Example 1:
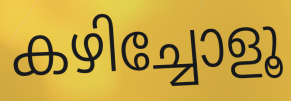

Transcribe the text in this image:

കഴിച്ചോളൂ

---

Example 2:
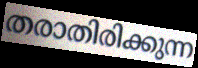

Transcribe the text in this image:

തരാതിരിക്കുന്ന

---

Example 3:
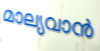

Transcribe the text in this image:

മാല്യവാൻ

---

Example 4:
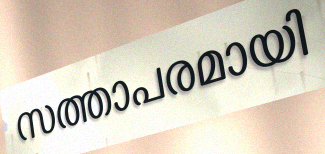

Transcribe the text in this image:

സത്താപരമായി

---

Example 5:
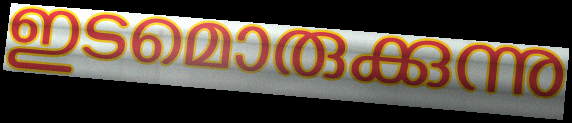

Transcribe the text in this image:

ഇടമൊരുക്കുന്നു